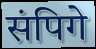
संपिगे